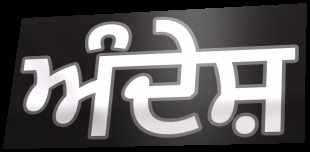
ਅੰਦੇਸ਼